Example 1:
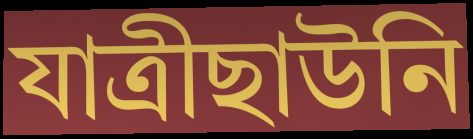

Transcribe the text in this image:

যাত্রীছাউনি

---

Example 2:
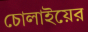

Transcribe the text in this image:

চোলাইয়ের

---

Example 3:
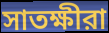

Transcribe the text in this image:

সাতক্ষীরা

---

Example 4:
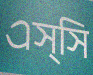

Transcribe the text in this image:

এস্‌সি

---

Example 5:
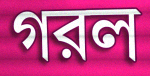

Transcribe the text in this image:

গরল